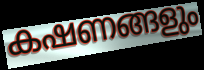
കഷണങ്ങളും